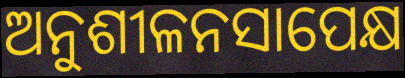
ଅନୁଶୀଳନସାପେକ୍ଷ